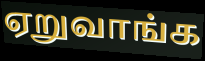
ஏறுவாங்க